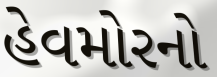
હેવમોરનો